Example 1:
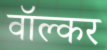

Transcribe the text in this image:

वॉल्कर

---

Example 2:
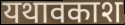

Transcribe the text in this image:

यथावकाश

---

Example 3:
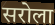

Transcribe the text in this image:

सरोला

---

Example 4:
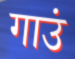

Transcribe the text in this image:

गाउं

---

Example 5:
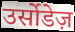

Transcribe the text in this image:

उर्सोडेज़